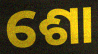
ଶୋ